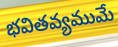
భవితవ్యముమే